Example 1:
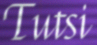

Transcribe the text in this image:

Tutsi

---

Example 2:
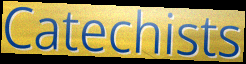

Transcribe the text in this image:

Catechists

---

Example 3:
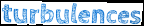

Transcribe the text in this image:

turbulences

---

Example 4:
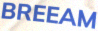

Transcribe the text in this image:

BREEAM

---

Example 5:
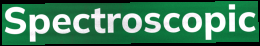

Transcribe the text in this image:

Spectroscopic